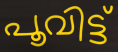
പൂവിട്ട്